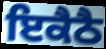
ਇਕੈਠੈ